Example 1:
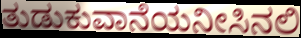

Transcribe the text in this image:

ತುಡುಕುವಾನೆಯನೀಸಿನಲಿ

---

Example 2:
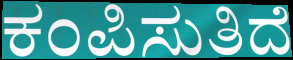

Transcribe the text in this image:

ಕಂಪಿಸುತಿದೆ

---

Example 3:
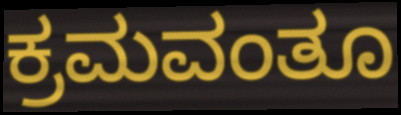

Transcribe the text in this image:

ಕ್ರಮವಂತೂ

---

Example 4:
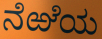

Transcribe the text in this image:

ನೆಱೆಯ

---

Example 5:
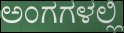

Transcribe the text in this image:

ಅಂಗಗಳಲ್ಲಿ